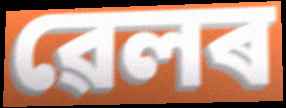
ৱেলৰ